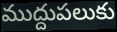
ముద్దుపలుకు